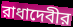
রাধাদেবীর